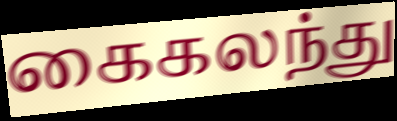
கைகலந்து